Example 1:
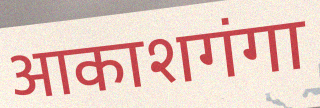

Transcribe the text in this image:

आकाशगंगा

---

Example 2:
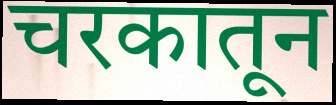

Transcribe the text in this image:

चरकातून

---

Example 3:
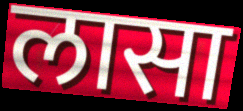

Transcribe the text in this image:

लासा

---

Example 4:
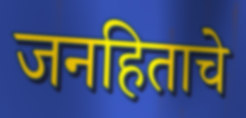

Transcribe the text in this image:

जनहिताचे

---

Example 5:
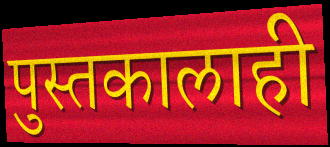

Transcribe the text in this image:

पुस्तकालाही